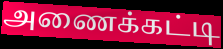
அணைக்கட்டி